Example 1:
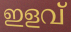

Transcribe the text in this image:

ഇളവ്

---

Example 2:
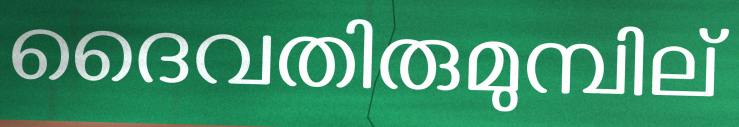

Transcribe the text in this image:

ദൈവതിരുമുമ്പില്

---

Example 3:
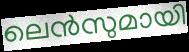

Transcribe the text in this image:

ലെൻസുമായി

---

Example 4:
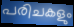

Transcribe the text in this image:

പരിചകളും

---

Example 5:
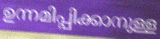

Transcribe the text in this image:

ഉന്നമിപ്പിക്കാനുള്ള